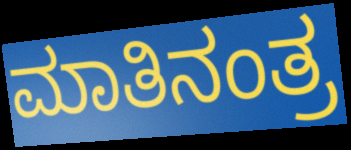
ಮಾತಿನಂತ್ರ